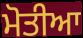
ਮੋਤੀਆ